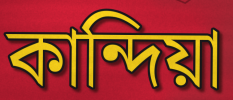
কান্দিয়া